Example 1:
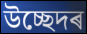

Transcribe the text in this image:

উচ্ছেদৰ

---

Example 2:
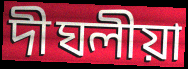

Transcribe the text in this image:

দীঘলীয়া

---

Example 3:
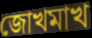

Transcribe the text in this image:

জোখমাখ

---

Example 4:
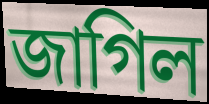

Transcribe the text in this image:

জাগিল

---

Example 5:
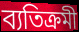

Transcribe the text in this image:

ব্যতিক্ৰমী